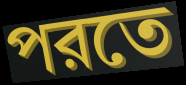
পরতে